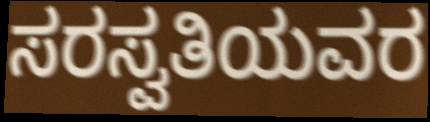
ಸರಸ್ವತಿಯವರ